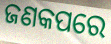
ଜଣକପରେ